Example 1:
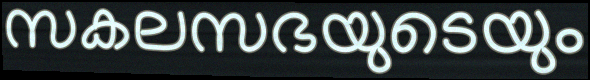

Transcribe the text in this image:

സകലസഭയുടെയും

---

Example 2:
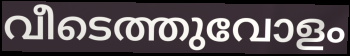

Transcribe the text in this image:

വീടെത്തുവോളം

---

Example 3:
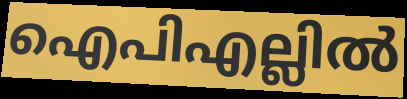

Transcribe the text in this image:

ഐപിഎല്ലിൽ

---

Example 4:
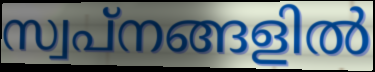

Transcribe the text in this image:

സ്വപ്നങ്ങളിൽ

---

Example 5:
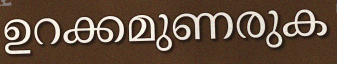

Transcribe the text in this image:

ഉറക്കമുണരുക